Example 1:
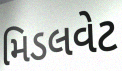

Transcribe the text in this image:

મિડલવેટ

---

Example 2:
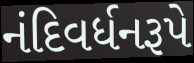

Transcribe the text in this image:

નંદિવર્ધનરૂપે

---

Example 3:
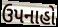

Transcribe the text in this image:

ઉપનાહો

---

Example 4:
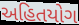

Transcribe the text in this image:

અહિતયોગ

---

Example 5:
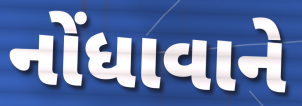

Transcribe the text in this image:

નોંધાવાને